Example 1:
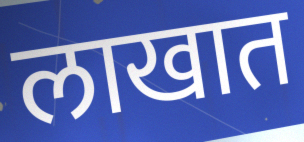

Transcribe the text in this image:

लाखात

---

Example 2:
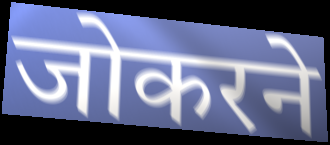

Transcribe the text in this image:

जोकरने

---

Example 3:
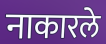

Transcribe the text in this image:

नाकारले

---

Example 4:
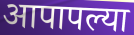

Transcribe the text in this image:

आपापल्या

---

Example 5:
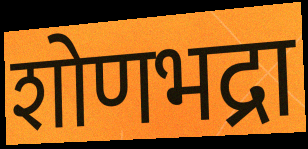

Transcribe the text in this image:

शोणभद्रा